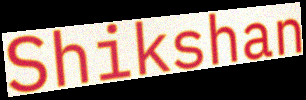
Shikshan